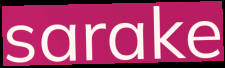
sarake